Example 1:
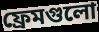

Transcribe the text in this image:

ফ্রেমগুলো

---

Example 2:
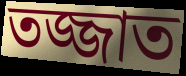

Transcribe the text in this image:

তজ্জাত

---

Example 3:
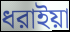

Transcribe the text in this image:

ধরাইয়া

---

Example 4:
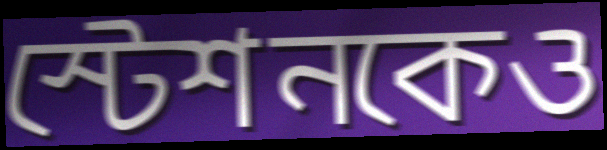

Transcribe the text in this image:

স্টেশনকেও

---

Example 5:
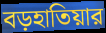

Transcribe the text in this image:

বড়হাতিয়ার